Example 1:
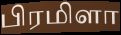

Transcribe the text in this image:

பிரமிளா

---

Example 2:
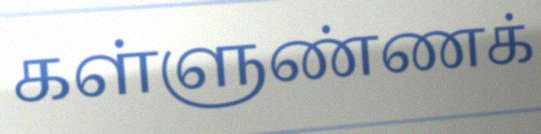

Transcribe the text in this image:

கள்ளுண்ணக்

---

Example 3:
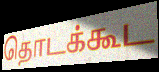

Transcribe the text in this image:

தொடக்கூட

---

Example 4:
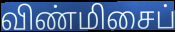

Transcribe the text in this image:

விண்மிசைப்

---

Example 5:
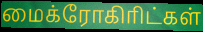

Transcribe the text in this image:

மைக்ரோகிரிட்கள்